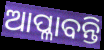
ଆପ୍ଳାବନ୍ତି